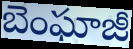
బెంఘాజీ